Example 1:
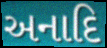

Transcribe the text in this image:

અનાદિ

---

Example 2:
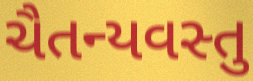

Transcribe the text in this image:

ચૈતન્યવસ્તુ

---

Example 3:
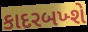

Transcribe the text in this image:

કાદરબખ્શે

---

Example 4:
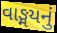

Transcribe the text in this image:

વાઙ્મયનું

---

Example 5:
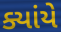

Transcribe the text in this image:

ક્યાંયે